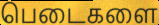
பெடைகளை